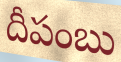
దీపంబు